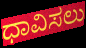
ಧಾವಿಸಲು